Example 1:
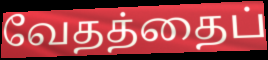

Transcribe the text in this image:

வேதத்தைப்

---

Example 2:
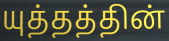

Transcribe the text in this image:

யுத்தத்தின்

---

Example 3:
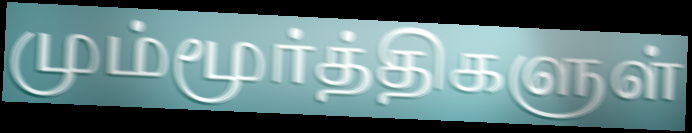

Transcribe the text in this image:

மும்மூர்த்திகளுள்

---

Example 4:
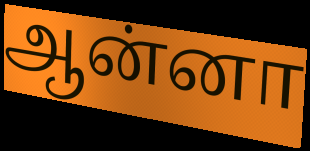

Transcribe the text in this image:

ஆன்னா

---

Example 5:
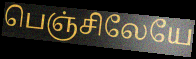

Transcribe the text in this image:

பெஞ்சிலேயே